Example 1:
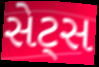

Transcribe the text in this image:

સેટ્સ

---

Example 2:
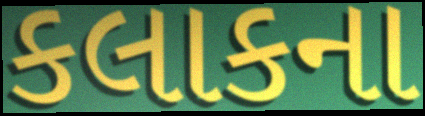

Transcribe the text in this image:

કલાકના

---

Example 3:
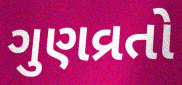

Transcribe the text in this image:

ગુણવ્રતો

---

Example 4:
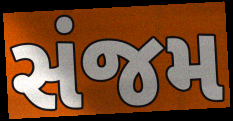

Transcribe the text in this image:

સંજમ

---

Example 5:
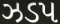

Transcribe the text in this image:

ઝડપ